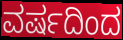
ವರ್ಷದಿಂದ